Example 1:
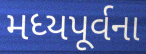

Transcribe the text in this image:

મધ્યપૂર્વના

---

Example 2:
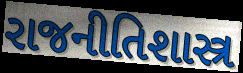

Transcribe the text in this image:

રાજનીતિશાસ્ત્ર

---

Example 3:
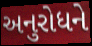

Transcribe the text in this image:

અનુરોધને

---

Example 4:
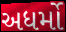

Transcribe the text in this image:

અધર્મો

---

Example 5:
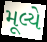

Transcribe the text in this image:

મૂલ્યે